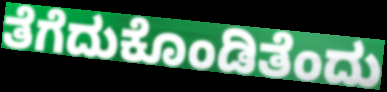
ತೆಗೆದುಕೊಂಡಿತೆಂದು